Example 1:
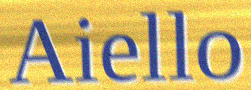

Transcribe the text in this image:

Aiello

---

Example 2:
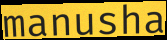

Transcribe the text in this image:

manusha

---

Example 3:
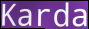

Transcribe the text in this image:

Karda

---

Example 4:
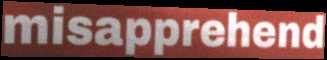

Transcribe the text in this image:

misapprehend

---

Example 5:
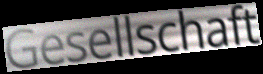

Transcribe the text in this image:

Gesellschaft